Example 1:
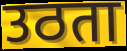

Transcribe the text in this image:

उठता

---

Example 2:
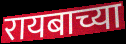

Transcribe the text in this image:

रायबाच्या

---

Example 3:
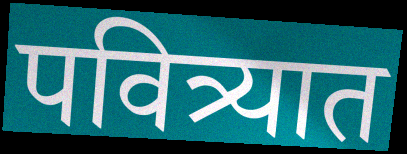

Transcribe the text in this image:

पवित्र्यात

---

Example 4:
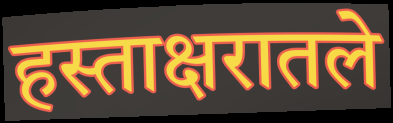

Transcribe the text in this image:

हस्ताक्षरातले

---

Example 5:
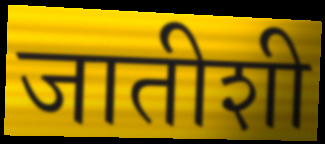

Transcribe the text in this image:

जातीशी